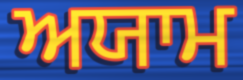
ਅਯਾਮ